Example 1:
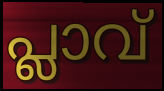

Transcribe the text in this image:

പ്ലാവ്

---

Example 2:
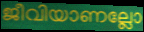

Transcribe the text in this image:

ജീവിയാണല്ലോ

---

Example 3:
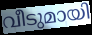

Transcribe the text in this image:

വീടുമായി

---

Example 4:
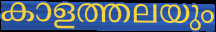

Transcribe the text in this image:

കാളത്തലയും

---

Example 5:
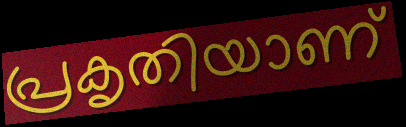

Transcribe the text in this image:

പ്രകൃതിയാണ്